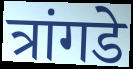
त्रांगडे